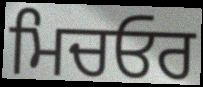
ਮਿਚਓਰ